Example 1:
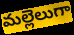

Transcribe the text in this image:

మల్లెలుగా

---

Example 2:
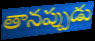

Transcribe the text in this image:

తానప్పుడు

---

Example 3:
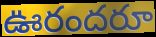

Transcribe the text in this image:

ఊరందరూ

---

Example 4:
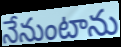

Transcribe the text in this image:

నేనుంటాను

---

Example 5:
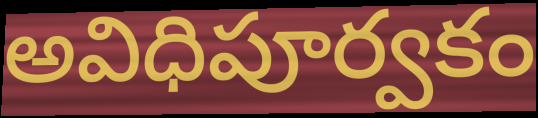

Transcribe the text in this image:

అవిధిపూర్వకం